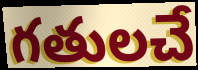
గతులచే